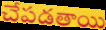
చేపడతాయి